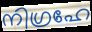
നിഗ്രഹേ